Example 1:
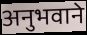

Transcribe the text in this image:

अनुभवाने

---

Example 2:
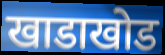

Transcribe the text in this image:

खाडाखोड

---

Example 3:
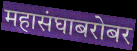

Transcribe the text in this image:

महासंघाबरोबर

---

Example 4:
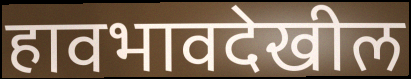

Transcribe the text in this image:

हावभावदेखील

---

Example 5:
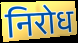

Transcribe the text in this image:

निरोध